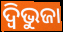
ଦ୍ବିଭୁଜା